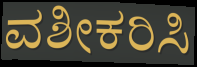
ವಶೀಕರಿಸಿ